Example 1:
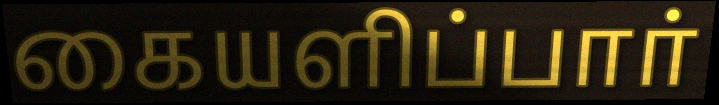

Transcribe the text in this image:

கையளிப்பார்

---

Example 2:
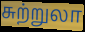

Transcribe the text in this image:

சுற்றுலா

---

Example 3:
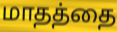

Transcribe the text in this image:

மாதத்தை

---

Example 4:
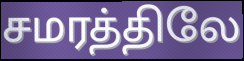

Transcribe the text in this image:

சமரத்திலே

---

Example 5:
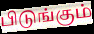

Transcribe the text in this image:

பிடுங்கும்